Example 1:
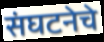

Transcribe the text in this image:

संघटनेचे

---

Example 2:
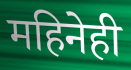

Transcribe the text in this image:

महिनेही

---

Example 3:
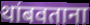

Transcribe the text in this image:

थांबवताना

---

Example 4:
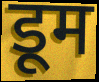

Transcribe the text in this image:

डूम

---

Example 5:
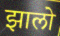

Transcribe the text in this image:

झालो